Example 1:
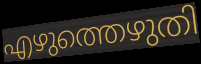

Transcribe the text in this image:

എഴുത്തെഴുതി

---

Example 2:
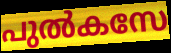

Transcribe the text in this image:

പുൽകസേ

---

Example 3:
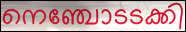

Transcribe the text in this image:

നെഞ്ചോടടക്കി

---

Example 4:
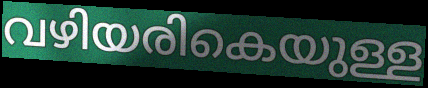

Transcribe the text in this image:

വഴിയരികെയുള്ള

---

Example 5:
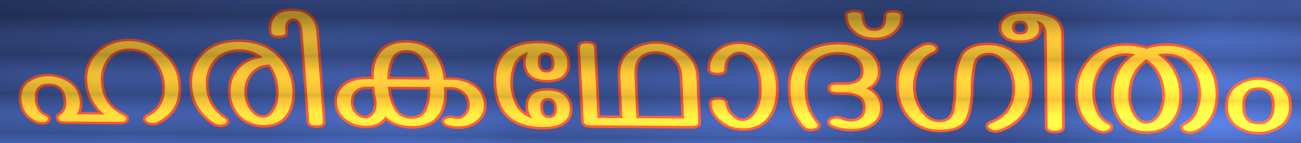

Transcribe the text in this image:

ഹരികഥോദ്ഗീതം